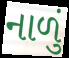
નાળું